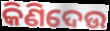
କିଣିଦେଉ